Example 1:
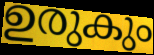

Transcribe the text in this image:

ഉരുകും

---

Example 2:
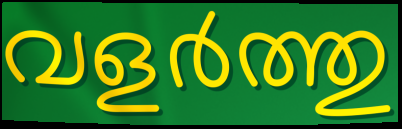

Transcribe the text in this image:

വളർത്തു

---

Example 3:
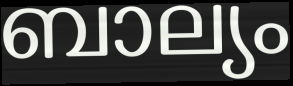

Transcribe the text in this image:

ബാല്യം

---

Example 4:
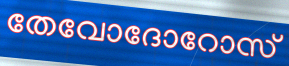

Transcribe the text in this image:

തേവോദോറോസ്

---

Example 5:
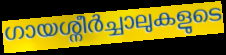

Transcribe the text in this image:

ഗായശ്നീർച്ചാലുകളുടെ